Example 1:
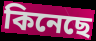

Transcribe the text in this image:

কিনেছে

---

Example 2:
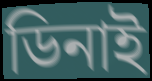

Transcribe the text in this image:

ডিনাই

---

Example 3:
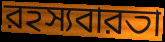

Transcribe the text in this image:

রহস্যবারতা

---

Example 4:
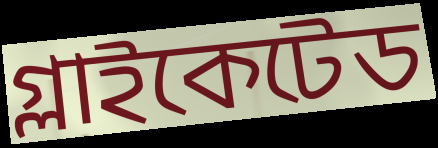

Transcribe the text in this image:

গ্লাইকেটেড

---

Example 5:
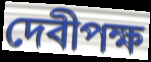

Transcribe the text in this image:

দেবীপক্ষ